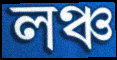
লঞ্চ